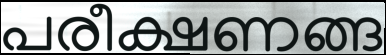
പരീക്ഷണങ്ങ